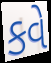
કવે